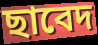
ছাবেদ